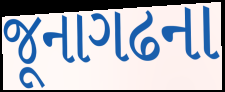
જૂનાગઢના